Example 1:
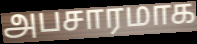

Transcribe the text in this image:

அபசாரமாக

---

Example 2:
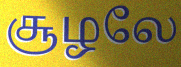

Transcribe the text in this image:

சூழலே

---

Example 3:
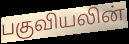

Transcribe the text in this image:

பகுவியலின்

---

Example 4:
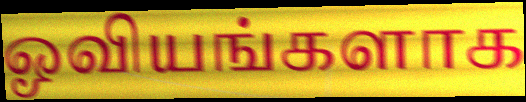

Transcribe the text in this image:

ஓவியங்களாக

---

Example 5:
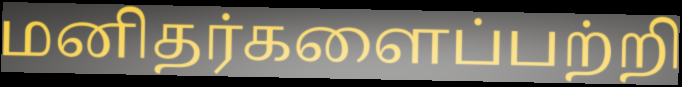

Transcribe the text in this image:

மனிதர்களைப்பற்றி